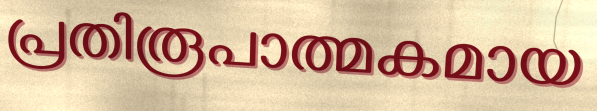
പ്രതിരൂപാത്മകമായ